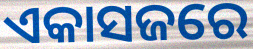
ଏକାସଜରେ